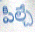
పీల్చే